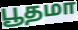
பூதமா